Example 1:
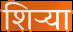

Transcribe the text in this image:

शिर्‍या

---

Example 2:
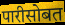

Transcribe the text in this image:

पारीसोबत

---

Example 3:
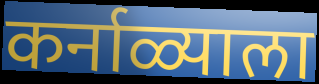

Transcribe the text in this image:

कर्नाळ्याला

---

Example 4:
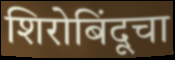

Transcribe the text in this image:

शिरोबिंदूचा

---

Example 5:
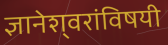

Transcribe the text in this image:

ज्ञानेश्वरांविषयी